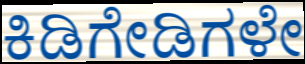
ಕಿಡಿಗೇಡಿಗಳೇ